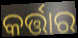
କର୍ତ୍ତାର